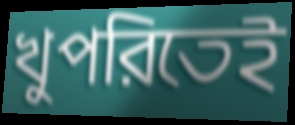
খুপরিতেই